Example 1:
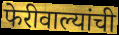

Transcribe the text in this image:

फेरीवाल्यांची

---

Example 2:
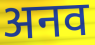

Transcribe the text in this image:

अनव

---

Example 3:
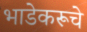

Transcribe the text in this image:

भाडेकरूचे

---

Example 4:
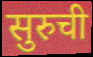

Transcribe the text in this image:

सुरुची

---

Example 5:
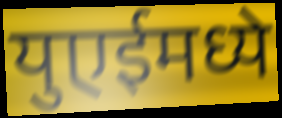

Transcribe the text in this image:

युएईमध्ये